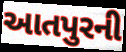
આતપુરની